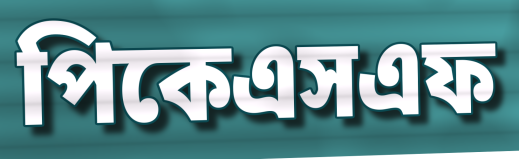
পিকেএসএফ